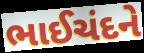
ભાઈચંદને